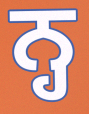
ਨ੍ਹ